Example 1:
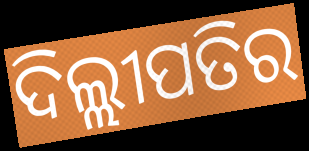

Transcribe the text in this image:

ଦିଲ୍ଲୀପତିର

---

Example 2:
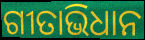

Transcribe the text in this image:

ଗୀତାଭିଧାନ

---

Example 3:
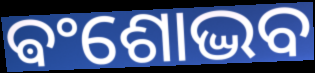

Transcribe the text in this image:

ଵଂଶୋଦ୍ଭବ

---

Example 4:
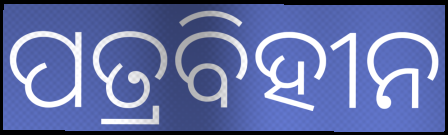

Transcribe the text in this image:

ପତ୍ରବିହୀନ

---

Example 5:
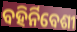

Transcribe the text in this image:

ବହିର୍ନିବେଶୀ